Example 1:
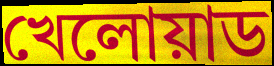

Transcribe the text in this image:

খেলোয়াড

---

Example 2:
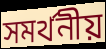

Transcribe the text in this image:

সমর্থনীয়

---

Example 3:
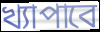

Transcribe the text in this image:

খ্যাপাবে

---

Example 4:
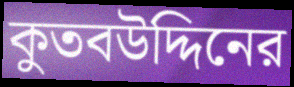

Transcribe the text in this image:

কুতবউদ্দিনের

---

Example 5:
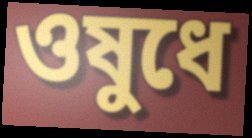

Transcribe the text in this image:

ওষুধে